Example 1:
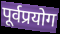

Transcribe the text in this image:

पूर्वप्रयोग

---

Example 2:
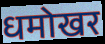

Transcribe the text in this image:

धमोखर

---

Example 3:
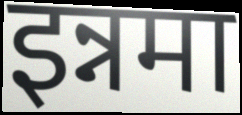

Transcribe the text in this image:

इन्नमा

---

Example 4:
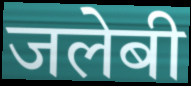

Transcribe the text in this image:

जलेबी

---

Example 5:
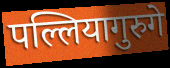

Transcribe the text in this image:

पल्लियागुरुगे